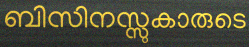
ബിസിനസ്സുകാരുടെ